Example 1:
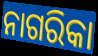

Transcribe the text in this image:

ନାଗରିକା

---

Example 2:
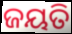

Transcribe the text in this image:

ଜୟତି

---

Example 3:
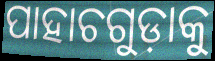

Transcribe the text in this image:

ପାହାଚଗୁଡ଼ାକୁ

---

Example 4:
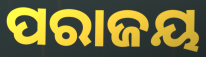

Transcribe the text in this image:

ପରାଜୟ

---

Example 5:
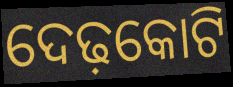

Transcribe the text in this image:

ଦେଢ଼କୋଟି